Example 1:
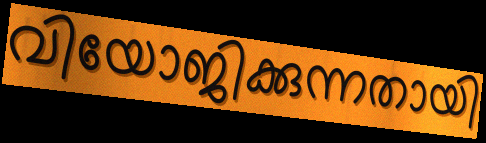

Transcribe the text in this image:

വിയോജിക്കുന്നതായി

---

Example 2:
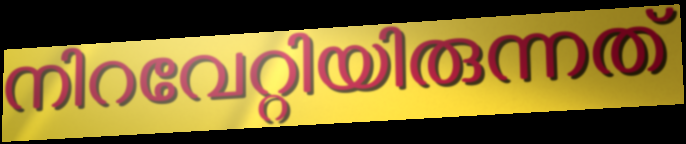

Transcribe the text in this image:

നിറവേറ്റിയിരുന്നത്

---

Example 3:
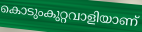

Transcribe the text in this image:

കൊടുംകുറ്റവാളിയാണ്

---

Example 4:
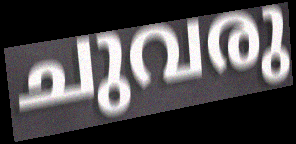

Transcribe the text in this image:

ചുവരു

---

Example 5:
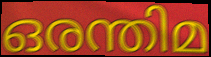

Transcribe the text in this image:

ഒരന്തിമ